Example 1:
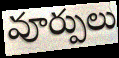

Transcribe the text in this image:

వూర్పులు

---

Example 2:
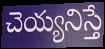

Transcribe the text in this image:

చెయ్యనిస్తే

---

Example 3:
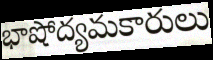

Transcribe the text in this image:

భాషోద్యమకారులు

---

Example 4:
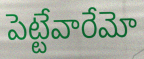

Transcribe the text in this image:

పెట్టేవారేమో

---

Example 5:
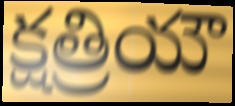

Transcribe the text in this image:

క్షత్రియౌ